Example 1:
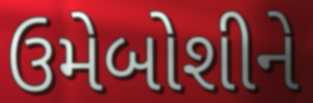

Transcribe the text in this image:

ઉમેબોશીને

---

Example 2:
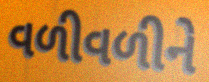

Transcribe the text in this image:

વળીવળીને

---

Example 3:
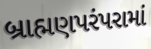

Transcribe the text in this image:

બ્રાહ્મણપરંપરામાં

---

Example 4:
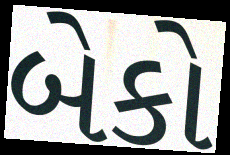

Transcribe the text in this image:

બેકો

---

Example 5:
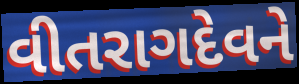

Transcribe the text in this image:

વીતરાગદેવને